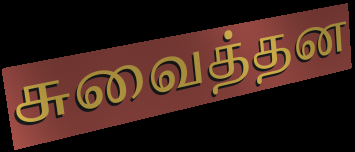
சுவைத்தன